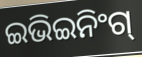
ଇଭିଇନିଂଗ୍